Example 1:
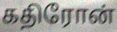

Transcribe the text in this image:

கதிரோன்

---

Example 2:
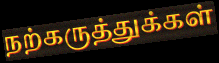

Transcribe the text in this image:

நற்கருத்துக்கள்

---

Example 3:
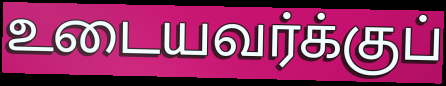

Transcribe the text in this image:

உடையவர்க்குப்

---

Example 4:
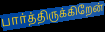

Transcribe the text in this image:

பார்த்திருக்கிறேன்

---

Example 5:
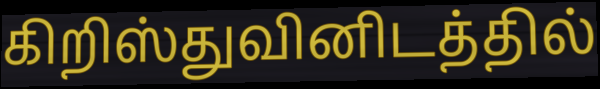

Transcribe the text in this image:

கிறிஸ்துவினிடத்தில்